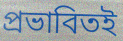
প্রভাবিতই